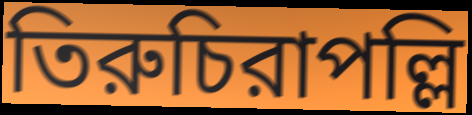
তিরুচিরাপল্লি